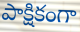
పాక్షికంగా